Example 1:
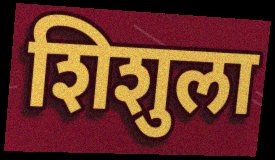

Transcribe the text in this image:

शिशुला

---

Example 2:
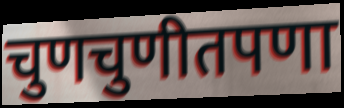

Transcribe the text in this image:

चुणचुणीतपणा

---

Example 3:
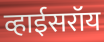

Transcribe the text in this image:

व्हाईसरॉय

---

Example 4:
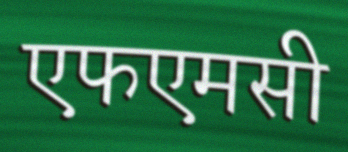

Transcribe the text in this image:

एफएमसी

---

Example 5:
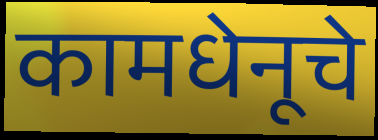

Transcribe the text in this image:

कामधेनूचे